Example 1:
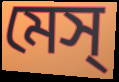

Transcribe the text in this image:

মেস্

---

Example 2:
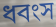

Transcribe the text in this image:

ধবংস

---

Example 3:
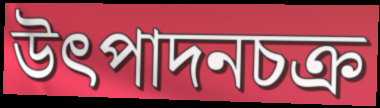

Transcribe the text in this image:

উৎপাদনচক্র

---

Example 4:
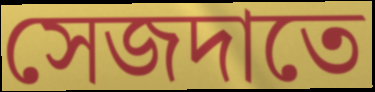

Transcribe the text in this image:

সেজদাতে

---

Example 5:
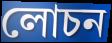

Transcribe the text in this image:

লোচন